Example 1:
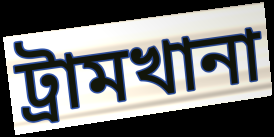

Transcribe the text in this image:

ট্রামখানা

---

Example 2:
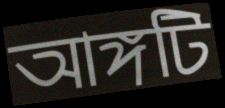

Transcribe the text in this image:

আঙ্গটি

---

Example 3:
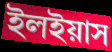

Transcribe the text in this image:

ইলইয়াস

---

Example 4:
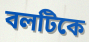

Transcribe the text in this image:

বলটিকে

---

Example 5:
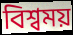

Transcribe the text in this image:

বিশ্বময়